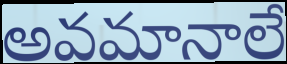
అవమానాలే